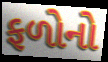
ફળોનો